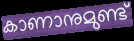
കാണാനുമുണ്ട്